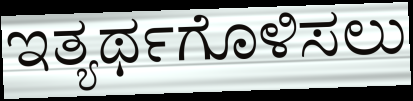
ಇತ್ಯರ್ಥಗೊಳಿಸಲು